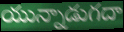
యున్నాడుగదా